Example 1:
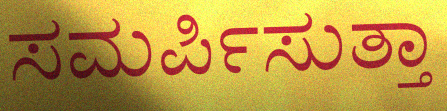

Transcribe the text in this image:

ಸಮರ್ಪಿಸುತ್ತಾ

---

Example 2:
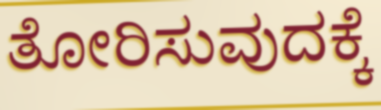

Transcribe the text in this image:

ತೋರಿಸುವುದಕ್ಕೆ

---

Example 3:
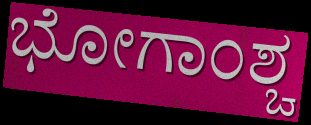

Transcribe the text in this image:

ಭೋಗಾಂಶ್ಚ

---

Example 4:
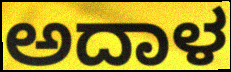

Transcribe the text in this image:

ಅದಾಳ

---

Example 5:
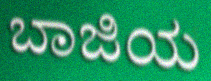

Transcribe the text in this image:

ಬಾಜಿಯ